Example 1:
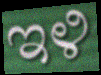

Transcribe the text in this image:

ಇಳಿ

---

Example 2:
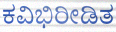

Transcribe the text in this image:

ಕವಿಭಿರೀಡಿತ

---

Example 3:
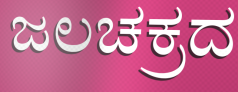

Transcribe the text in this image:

ಜಲಚಕ್ರದ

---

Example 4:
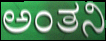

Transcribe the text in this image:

ಅಂತನಿ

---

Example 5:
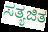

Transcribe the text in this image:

ಸತ್ಯಜಿತ